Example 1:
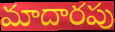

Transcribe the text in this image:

మాదారపు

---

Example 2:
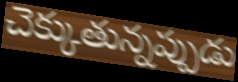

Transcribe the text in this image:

చెక్కుతున్నప్పుడు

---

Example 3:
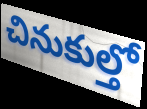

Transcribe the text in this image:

చినుకుల్తో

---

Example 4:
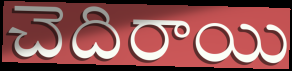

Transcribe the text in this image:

చెదిరాయి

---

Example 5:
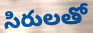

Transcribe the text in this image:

సిరులతో